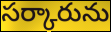
సర్కారును